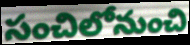
సంచిలోనుంచి